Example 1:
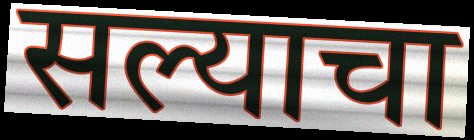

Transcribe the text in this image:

सल्याचा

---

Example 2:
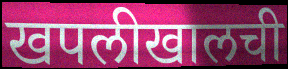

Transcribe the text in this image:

खपलीखालची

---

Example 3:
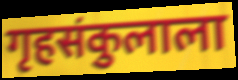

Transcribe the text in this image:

गृहसंकुलाला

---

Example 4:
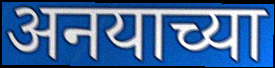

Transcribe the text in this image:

अनयाच्या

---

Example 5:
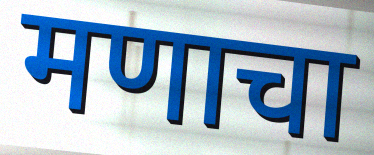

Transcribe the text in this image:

मणाचा